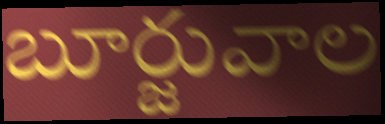
బూర్జువాల